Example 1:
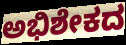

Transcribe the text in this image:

ಅಭಿಶೇಕದ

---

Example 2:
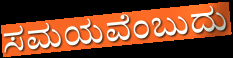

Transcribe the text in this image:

ಸಮಯವೆಂಬುದು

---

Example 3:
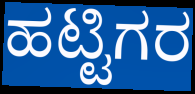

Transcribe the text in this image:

ಹಟ್ಟಿಗರ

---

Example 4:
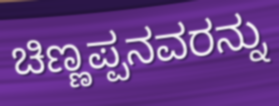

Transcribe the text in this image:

ಚಿಣ್ಣಪ್ಪನವರನ್ನು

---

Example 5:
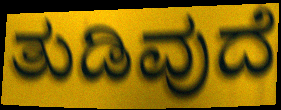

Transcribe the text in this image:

ತುಡಿವುದೆ